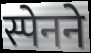
स्पेनने